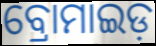
ବ୍ରୋମାଇଡ଼